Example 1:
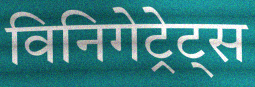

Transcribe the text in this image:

विनिगेट्रेट्स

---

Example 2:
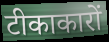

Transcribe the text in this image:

टीकाकारों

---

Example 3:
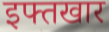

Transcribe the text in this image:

इफ्तखार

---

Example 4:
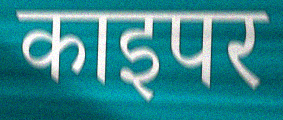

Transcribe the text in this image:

काइपर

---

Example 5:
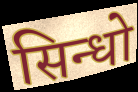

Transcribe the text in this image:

सिन्धो